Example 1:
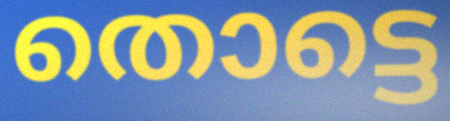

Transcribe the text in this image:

തൊട്ടെ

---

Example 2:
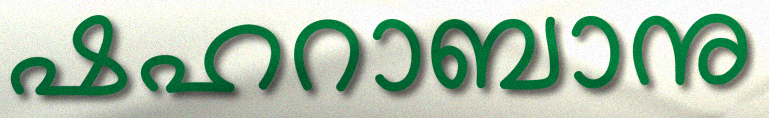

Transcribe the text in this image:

ഷഹറാബാനു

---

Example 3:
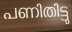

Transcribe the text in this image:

പണിതിട്ടു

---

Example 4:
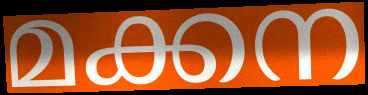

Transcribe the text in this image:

മക്കന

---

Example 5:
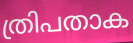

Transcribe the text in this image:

ത്രിപതാക